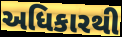
અધિકારથી